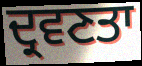
ਦ੍ਰਵਣਤਾ